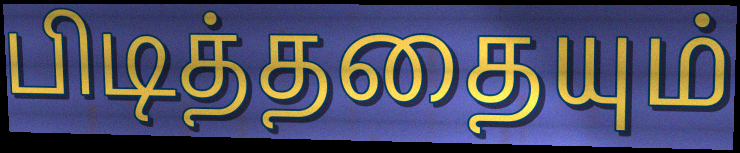
பிடித்ததையும்